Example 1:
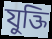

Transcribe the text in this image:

যুক্তি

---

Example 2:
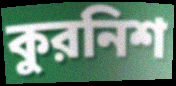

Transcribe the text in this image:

কুরনিশ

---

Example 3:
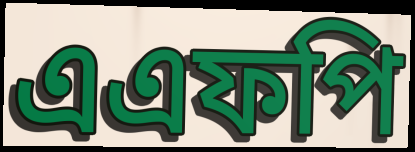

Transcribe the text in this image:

এএফপি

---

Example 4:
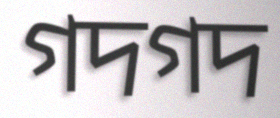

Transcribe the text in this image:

গদগদ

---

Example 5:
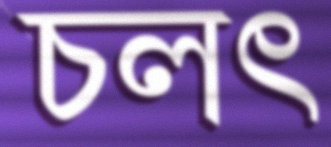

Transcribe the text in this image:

চলৎ